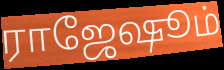
ராஜேஷூம்